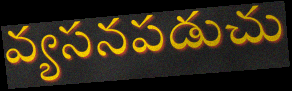
వ్యసనపడుచు